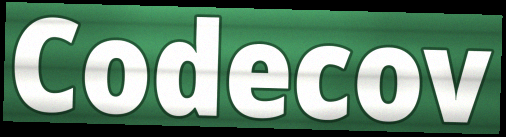
Codecov